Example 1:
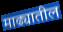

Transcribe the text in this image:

माढ्यातील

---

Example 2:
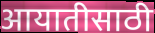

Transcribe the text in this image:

आयातीसाठी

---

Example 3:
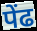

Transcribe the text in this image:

पेंढ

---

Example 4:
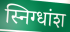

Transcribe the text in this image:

स्निग्धांश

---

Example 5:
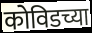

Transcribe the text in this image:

कोविडच्या